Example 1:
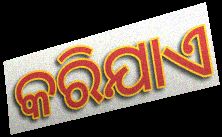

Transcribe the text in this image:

କରିଯାଏ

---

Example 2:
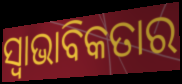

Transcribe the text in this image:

ସ୍ଵାଭାବିକତାର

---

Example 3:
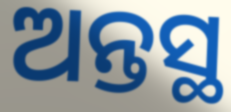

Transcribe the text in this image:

ଅନ୍ତସ୍ଥ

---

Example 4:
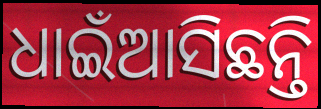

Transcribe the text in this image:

ଧାଇଁଆସିଛନ୍ତି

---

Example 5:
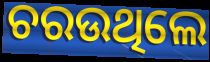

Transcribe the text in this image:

ଚରଉଥିଲେ